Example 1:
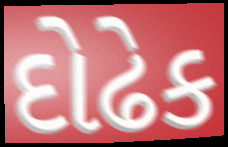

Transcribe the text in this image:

દોઢેક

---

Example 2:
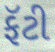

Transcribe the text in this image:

ફૅટી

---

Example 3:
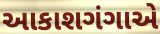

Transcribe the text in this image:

આકાશગંગાએ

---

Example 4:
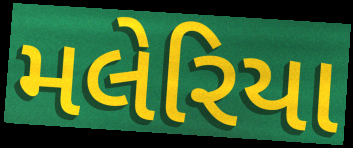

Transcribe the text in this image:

મલેરિયા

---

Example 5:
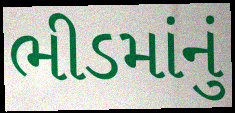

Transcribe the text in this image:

ભીડમાંનું